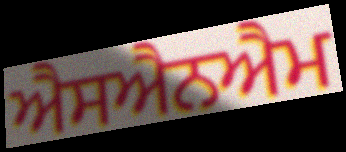
ਐਸਐਨਐਮ